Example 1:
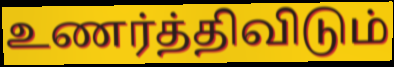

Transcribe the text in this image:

உணர்த்திவிடும்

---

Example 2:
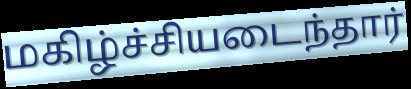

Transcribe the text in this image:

மகிழ்ச்சியடைந்தார்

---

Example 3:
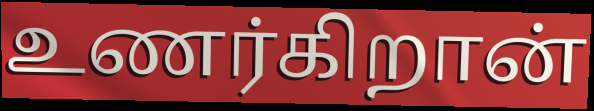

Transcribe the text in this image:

உணர்கிறான்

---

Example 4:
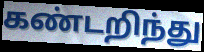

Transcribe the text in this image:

கண்டறிந்து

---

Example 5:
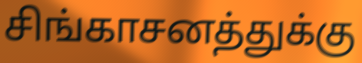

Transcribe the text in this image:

சிங்காசனத்துக்கு